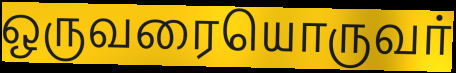
ஒருவரையொருவர்